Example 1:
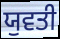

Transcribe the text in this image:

ਯੁਵਤੀ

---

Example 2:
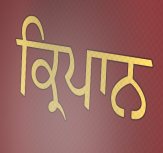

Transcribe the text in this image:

ਕ੍ਰਿਪਾਨ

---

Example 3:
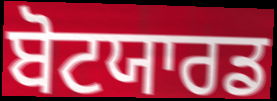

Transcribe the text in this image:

ਬੋਟਯਾਰਡ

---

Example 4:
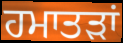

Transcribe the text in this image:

ਹਮਾਤੜਾਂ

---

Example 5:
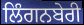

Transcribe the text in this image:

ਲਿੰਗਨਬੇਰੀ